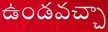
ఉండవచ్చా